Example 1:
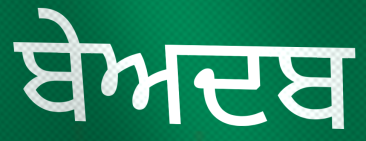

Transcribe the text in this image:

ਬੇਅਦਬ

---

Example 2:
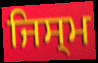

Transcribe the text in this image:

ਜਿਸ੍ਮ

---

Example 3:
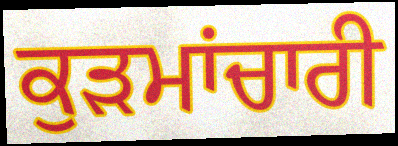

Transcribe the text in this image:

ਕੁੜਮਾਂਚਾਰੀ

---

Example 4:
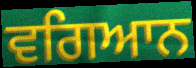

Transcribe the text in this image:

ਵਗਿਆਨ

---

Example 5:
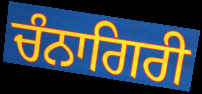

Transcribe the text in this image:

ਚੰਨਾਗਿਰੀ